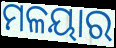
ମଳୟାର